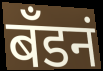
बँडनं